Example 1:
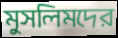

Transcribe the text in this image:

মুসলিমদের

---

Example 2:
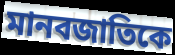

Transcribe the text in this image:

মানবজাতিকে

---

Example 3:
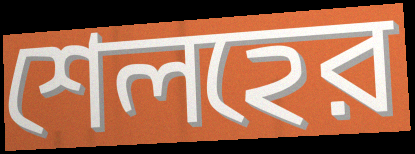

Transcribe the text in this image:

শেলহের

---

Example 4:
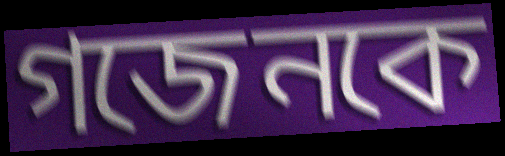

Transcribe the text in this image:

গজেনকে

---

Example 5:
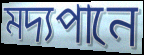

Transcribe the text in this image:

মদ্যপানে